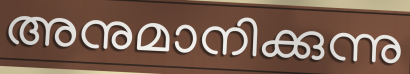
അനുമാനിക്കുന്നു